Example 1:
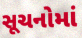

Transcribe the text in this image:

સૂચનોમાં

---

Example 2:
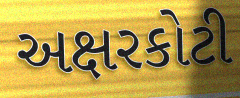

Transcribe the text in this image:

અક્ષરકોટી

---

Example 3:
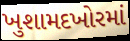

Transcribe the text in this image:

ખુશામદખોરમાં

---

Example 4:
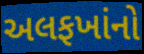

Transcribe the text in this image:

અલફખાંનો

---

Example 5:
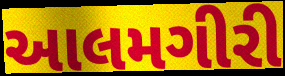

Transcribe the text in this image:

આલમગીરી